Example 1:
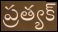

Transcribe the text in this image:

ప్రత్యక్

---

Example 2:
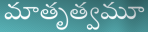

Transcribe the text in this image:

మాతృత్వమూ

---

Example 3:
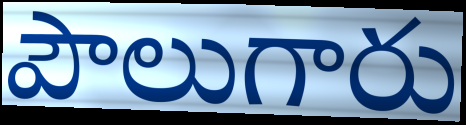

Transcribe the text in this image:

పౌలుగారు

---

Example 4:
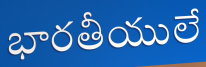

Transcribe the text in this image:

భారతీయులే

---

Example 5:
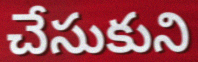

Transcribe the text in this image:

చేసుకుని